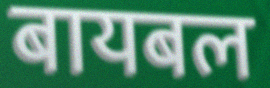
बायबल